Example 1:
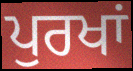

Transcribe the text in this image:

ਪੁਰਖਾਂ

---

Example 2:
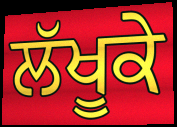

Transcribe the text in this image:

ਲੱਖੂਕੇ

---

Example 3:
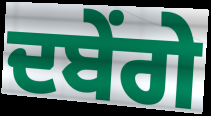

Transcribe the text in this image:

ਦਬੇਂਗੇ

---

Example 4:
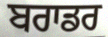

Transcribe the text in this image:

ਬਰਾਡਰ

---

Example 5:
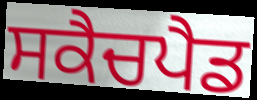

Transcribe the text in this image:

ਸਕੈਚਪੈਡ